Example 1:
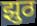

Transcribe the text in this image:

झुठ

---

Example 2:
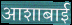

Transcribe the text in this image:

आशाबाई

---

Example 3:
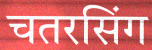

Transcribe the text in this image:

चतरसिंग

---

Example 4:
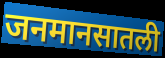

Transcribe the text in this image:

जनमानसातली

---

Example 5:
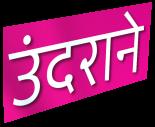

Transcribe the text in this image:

उंदराने